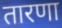
तारणा